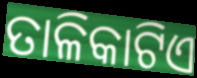
ତାଳିକାଟିଏ